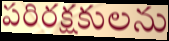
పరిరక్షకులను